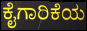
ಕೈಗಾರಿಕೆಯ